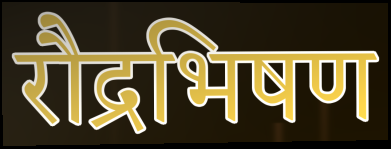
रौद्रभिषण